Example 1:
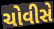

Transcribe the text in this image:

ચોવીસે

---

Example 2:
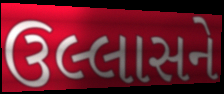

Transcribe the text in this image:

ઉલ્લાસને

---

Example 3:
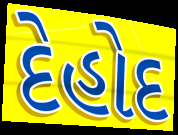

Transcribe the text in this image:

દેહોદ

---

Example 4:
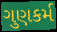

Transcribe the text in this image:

ગુણકર્મ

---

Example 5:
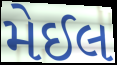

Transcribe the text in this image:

મેઈલ